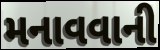
મનાવવાની